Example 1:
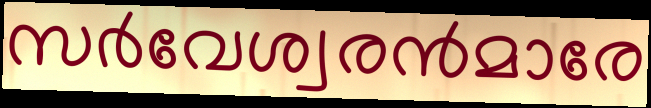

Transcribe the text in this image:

സർവേശ്വരൻമാരേ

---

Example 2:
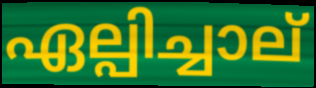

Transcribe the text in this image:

ഏല്പിച്ചാല്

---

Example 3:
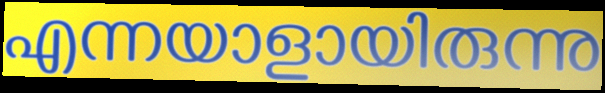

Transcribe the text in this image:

എന്നയാളായിരുന്നു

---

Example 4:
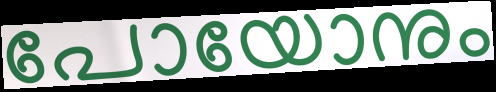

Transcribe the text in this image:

പോയോനും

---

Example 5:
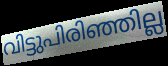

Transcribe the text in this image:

വിട്ടുപിരിഞ്ഞില്ല